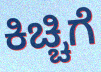
ಕಿಚ್ಚಿಗೆ